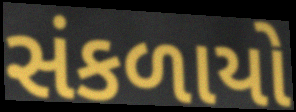
સંકળાયો